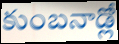
కుంబనాడ్లో